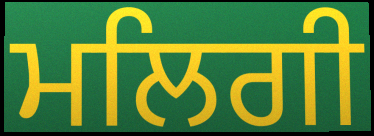
ਮਲਿਗੀ